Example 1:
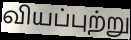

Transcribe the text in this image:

வியப்புற்று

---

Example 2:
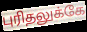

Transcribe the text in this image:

புரிதலுக்கே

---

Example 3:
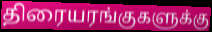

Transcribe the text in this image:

திரையரங்குகளுக்கு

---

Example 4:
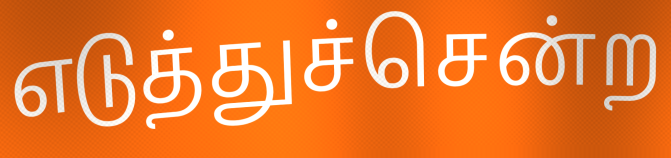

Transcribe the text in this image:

எடுத்துச்சென்ற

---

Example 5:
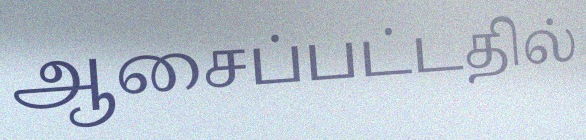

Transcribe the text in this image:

ஆசைப்பட்டதில்